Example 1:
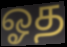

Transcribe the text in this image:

ஓத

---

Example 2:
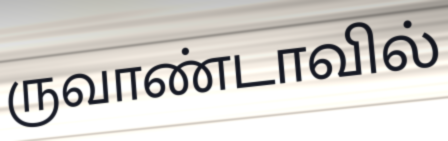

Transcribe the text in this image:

ருவாண்டாவில்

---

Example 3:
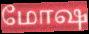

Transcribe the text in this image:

மோஷ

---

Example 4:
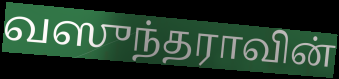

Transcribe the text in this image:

வஸுந்தராவின்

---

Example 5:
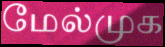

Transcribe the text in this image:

மேல்முக